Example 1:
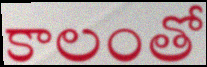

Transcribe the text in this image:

కాలంతో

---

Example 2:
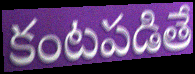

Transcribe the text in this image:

కంటపడితే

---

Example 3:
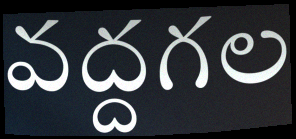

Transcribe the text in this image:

వద్దగల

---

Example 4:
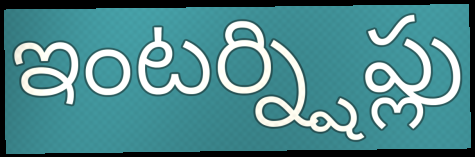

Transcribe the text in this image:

ఇంటర్న్షిప్లు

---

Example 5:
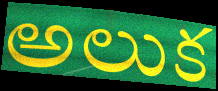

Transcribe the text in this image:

అలుక